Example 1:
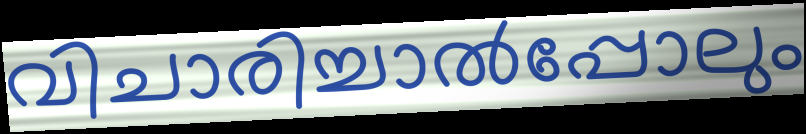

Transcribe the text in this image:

വിചാരിച്ചാൽപ്പോലും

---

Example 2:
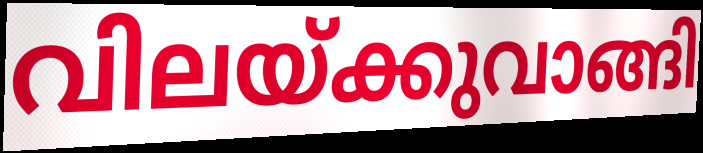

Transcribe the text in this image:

വിലയ്ക്കുവാങ്ങി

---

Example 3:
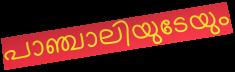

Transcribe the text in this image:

പാഞ്ചാലിയുടേയും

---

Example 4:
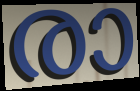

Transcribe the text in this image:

രാ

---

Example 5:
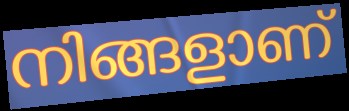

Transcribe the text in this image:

നിങ്ങളാണ്